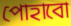
পোহাবো